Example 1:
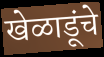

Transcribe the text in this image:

खेळाडूंचे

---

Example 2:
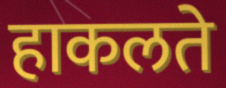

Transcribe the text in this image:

हाकलते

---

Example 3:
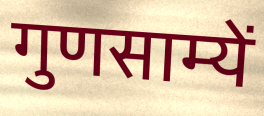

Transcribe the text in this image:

गुणसाम्यें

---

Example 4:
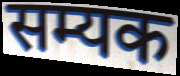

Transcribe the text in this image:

सम्‍यक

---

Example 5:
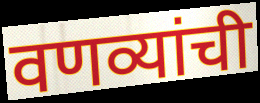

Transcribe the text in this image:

वणव्यांची